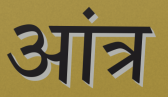
आंत्र